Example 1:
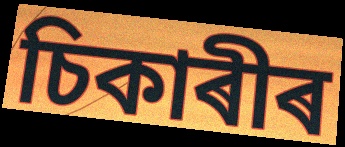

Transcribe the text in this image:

চিকাৰীৰ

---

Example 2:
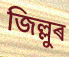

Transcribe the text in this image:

জিল্লুৰ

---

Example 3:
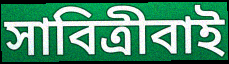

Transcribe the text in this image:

সাবিত্ৰীবাই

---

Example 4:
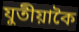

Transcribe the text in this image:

যুতীয়াকৈ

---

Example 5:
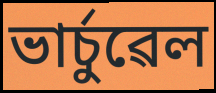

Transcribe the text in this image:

ভাৰ্চুৱেল